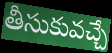
తీసుకువచ్చే